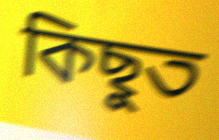
কিছুত